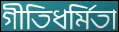
গীতিধর্মিতা